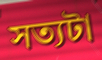
সত্যটা